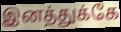
இனத்துக்கே